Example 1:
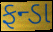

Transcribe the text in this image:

ફન્ડા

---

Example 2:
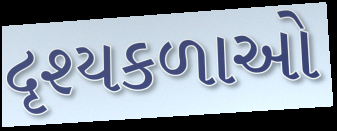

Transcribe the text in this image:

દૃશ્યકળાઓ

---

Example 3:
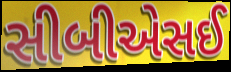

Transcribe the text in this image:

સીબીએસઈ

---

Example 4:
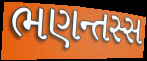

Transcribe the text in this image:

ભણન્તસ્સ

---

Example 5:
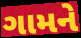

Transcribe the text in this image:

ગામને